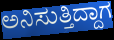
ಅನಿಸುತ್ತಿದ್ದಾಗ